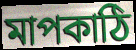
মাপকাঠি